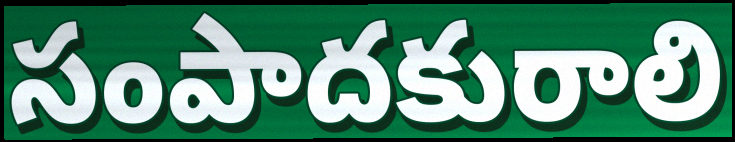
సంపాదకురాలి